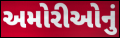
અમોરીઓનું